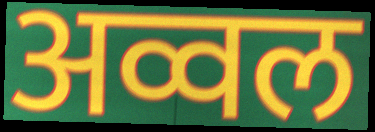
अव्वल